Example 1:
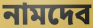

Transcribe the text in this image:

নামদেব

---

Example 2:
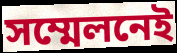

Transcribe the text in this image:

সম্মেলনেই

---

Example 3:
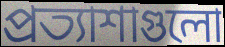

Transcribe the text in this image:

প্রত্যাশাগুলো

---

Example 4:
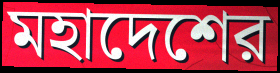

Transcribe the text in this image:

মহাদেশের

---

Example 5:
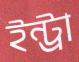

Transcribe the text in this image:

ইন্ট্রা